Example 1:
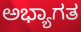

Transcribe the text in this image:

ಅಭ್ಯಾಗತ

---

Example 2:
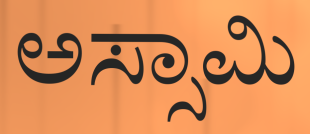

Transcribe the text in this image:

ಅಸ್ಸಾಮಿ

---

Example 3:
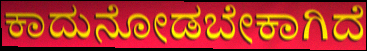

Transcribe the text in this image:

ಕಾದುನೋಡಬೇಕಾಗಿದೆ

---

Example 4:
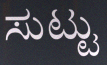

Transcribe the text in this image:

ಸುಟ್ಟು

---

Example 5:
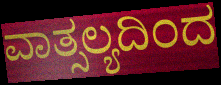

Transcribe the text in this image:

ವಾತ್ಸಲ್ಯದಿಂದ